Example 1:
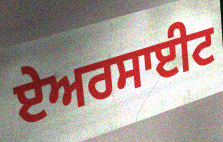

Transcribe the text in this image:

ਏਅਰਸਾਈਟ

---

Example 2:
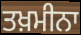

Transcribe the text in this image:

ਤਖ਼ਮੀਨਾ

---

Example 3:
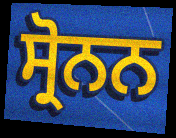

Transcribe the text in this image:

ਸ੍ਰੋਨਨ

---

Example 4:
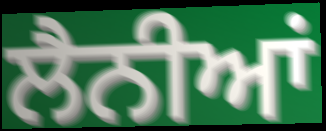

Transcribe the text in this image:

ਲੈਨੀਆਂ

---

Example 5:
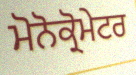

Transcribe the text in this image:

ਮੋਨੋਕ੍ਰੋਮੇਟਰ